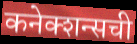
कनेक्शन्सची